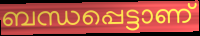
ബന്ധപ്പെട്ടാണ്